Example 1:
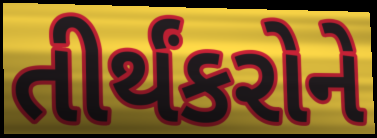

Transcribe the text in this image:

તીર્થંકરોને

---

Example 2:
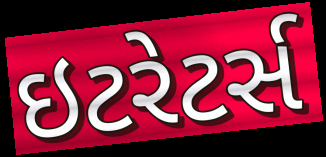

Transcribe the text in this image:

ઇટરેટર્સ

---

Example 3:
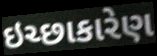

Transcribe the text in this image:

ઇચ્છાકારેણ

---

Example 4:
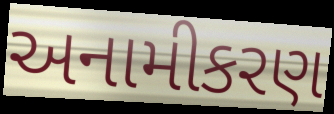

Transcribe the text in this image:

અનામીકરણ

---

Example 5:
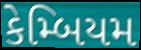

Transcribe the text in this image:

કેમ્બિયમ